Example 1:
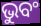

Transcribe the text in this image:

ଭୁବଂ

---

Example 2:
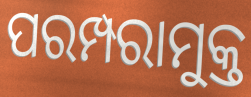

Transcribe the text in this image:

ପରମ୍ପରାମୁକ୍ତ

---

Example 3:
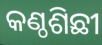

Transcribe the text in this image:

କଣ୍ଠଶିଛୀ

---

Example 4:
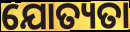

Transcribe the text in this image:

ଯୋତ୍ୟତା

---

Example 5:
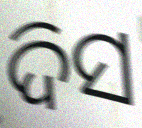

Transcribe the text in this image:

ଦିସ